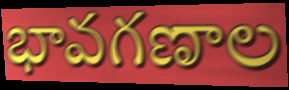
భావగణాల